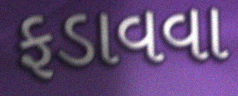
ફડાવવા